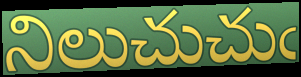
నిలుచుచుఁ